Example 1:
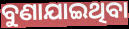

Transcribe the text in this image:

ବୁଣାଯାଇଥିବା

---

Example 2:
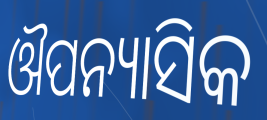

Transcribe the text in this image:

ଔପନ୍ୟାସିକ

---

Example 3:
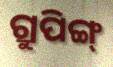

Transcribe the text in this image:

ଗ୍ରୁପିଙ୍ଗ୍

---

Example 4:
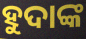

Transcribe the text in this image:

ହୁଦାଙ୍କ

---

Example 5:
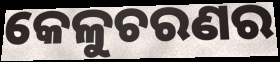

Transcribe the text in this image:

କେଳୁଚରଣର